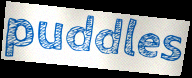
puddles